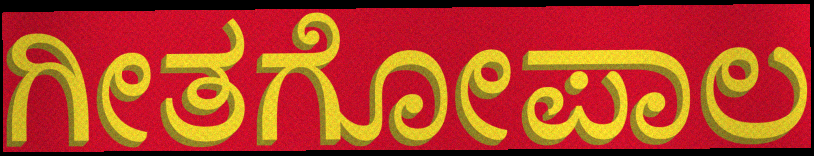
ಗೀತಗೋಪಾಲ